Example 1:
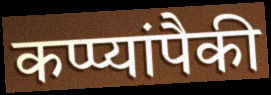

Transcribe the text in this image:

कप्प्यांपैकी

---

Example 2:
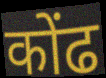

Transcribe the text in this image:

कोंढ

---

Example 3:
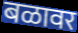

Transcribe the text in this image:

बळावर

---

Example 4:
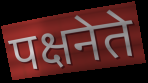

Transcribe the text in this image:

पक्षनेते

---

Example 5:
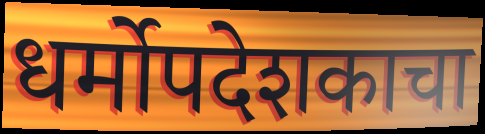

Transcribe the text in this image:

धर्मोपदेशकाचा